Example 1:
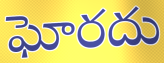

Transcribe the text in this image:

ఘోరదు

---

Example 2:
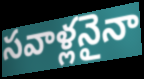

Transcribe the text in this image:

సవాళ్లనైనా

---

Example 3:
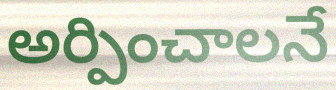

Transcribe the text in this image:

అర్పించాలనే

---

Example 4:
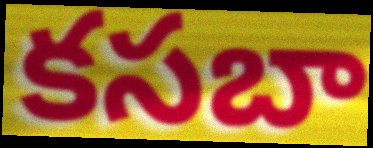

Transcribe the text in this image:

కసబా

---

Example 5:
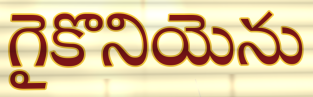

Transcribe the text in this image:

గైకొనియెను